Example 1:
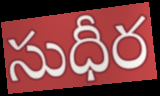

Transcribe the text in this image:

సుధీర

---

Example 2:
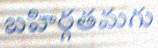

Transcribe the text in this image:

బహిర్గతమగు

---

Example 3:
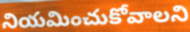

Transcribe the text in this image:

నియమించుకోవాలని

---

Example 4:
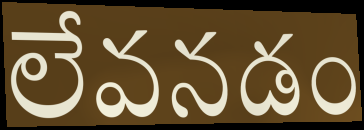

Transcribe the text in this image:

లేవనడం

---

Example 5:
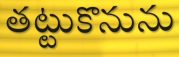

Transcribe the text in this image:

తట్టుకొనును